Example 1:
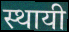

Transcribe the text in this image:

स्थायी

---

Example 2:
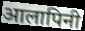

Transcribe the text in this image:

आलापिनी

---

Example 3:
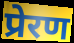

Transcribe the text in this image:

प्रेरण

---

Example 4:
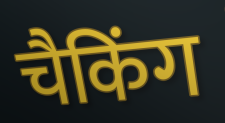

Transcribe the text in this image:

चैकिंग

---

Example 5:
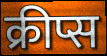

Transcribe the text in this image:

क्रीप्स